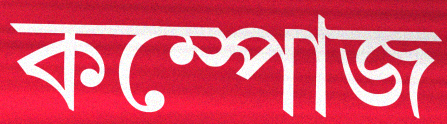
কম্পোজ